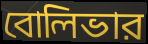
বোলিভার